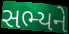
સભ્યને